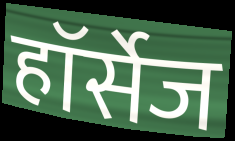
हॉर्सेज